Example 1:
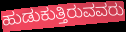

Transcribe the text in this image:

ಹುಡುಕುತ್ತಿರುವವರು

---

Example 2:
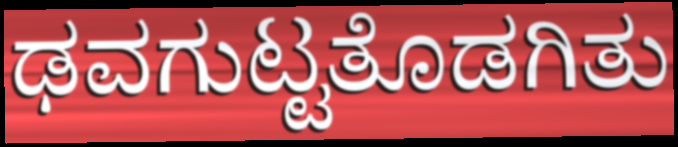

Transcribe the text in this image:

ಢವಗುಟ್ಟತೊಡಗಿತು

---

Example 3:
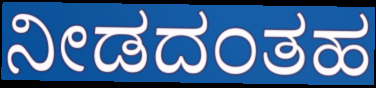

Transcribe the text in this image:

ನೀಡದಂತಹ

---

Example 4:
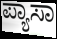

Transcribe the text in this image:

ಪ್ಯಾಸಾ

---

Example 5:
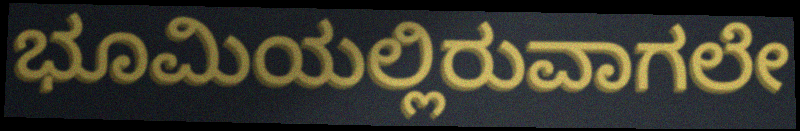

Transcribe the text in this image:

ಭೂಮಿಯಲ್ಲಿರುವಾಗಲೇ